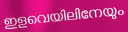
ഇളവെയിലിനേയും